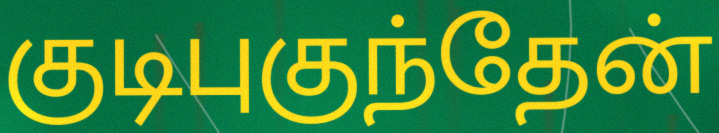
குடிபுகுந்தேன்